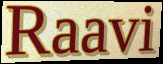
Raavi